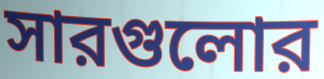
সারগুলোর